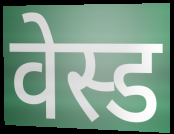
वेस्ड